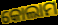
କୋଲାମ